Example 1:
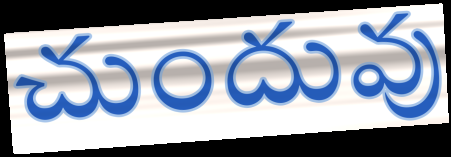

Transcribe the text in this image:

చుందువు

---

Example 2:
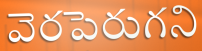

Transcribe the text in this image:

వెరపెరుగని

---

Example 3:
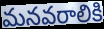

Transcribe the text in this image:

మనవరాలికి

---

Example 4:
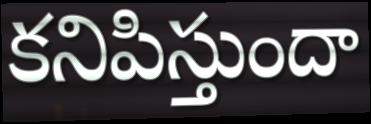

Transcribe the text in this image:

కనిపిస్తుందా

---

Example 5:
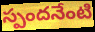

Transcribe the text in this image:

స్పందనేంటి